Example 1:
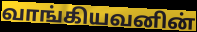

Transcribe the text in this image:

வாங்கியவனின்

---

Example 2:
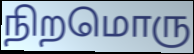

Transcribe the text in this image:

நிறமொரு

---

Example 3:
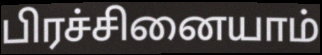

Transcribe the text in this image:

பிரச்சினையாம்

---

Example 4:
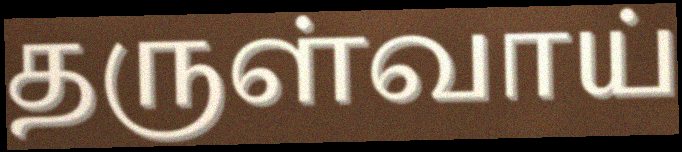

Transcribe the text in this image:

தருள்வாய்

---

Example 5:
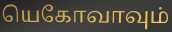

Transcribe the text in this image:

யெகோவாவும்